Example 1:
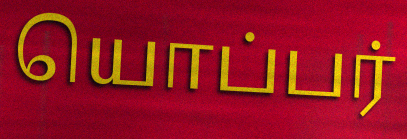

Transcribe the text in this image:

யொப்பர்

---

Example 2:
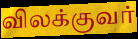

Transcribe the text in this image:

விலக்குவர்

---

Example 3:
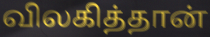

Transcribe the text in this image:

விலகித்தான்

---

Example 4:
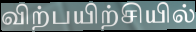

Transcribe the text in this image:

விற்பயிற்சியில்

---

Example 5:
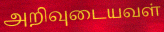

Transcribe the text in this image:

அறிவுடையவள்